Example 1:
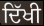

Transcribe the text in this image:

ਦਿੱਖੀ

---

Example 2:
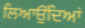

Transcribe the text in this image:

ਲਿਆਉਂਦਿਆਂ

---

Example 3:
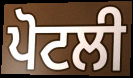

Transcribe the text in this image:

ਪੋਟਲੀ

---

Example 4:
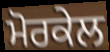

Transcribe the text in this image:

ਮੋਰਕੇਲ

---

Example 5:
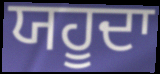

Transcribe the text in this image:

ਯਹੂਦਾ